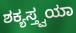
ಶಕ್ಯಸ್ತ್ವಯಾ